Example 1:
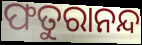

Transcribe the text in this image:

ଫତୁରାନନ୍ଦ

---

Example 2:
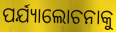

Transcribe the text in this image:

ପର୍ଯ୍ୟାଲୋଚନାକୁ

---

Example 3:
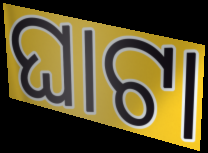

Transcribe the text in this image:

ଘାଟା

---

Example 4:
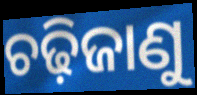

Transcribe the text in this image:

ଚଢ଼ିଜାଣୁ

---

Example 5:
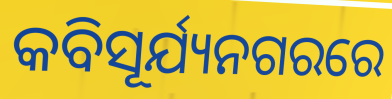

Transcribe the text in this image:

କବିସୂର୍ଯ୍ୟନଗରରେ